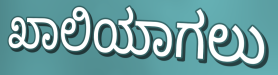
ಖಾಲಿಯಾಗಲು